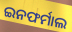
ଇନଫର୍ମାଲ